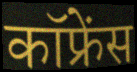
कॉफ्रेंस